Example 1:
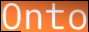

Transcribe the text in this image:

Onto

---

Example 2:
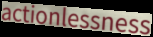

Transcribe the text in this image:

actionlessness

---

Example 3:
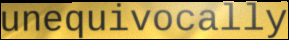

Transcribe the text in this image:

unequivocally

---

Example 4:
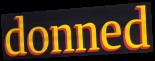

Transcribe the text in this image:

donned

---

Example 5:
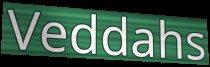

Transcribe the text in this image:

Veddahs